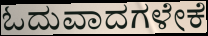
ಓದುವಾದಗಳೇಕೆ